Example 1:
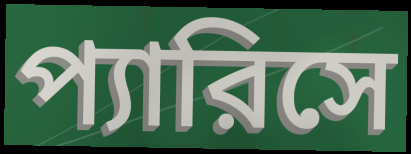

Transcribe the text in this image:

প্যারিসে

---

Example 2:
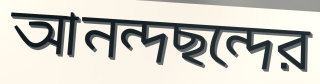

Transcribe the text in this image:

আনন্দছন্দের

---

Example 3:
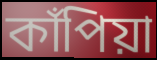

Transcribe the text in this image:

কাঁপিয়া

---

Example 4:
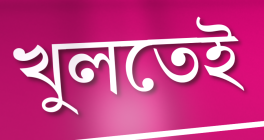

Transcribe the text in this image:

খুলতেই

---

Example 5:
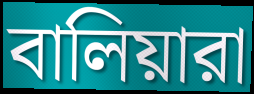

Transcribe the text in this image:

বালিয়ারা